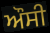
ਔਸੀ